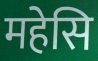
महेसि